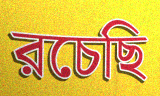
রচেছি